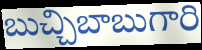
బుచ్చిబాబుగారి